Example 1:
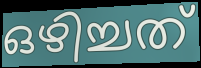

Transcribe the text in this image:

ഒഴിച്ചത്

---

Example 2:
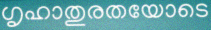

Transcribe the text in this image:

ഗൃഹാതുരതയോടെ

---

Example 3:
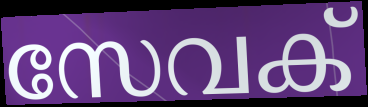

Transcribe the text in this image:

സേവക്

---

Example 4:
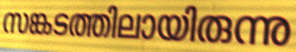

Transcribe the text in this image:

സങ്കടത്തിലായിരുന്നു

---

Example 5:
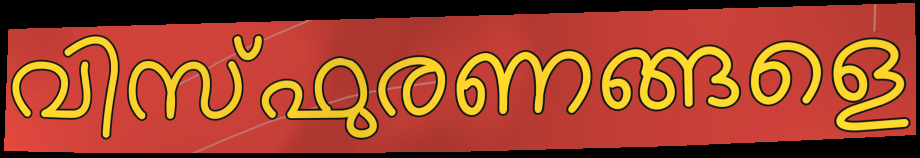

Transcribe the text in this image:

വിസ്ഫുരണങ്ങളെ